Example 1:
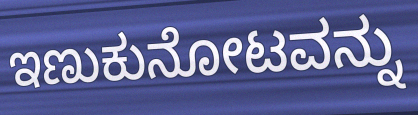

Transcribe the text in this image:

ಇಣುಕುನೋಟವನ್ನು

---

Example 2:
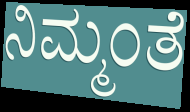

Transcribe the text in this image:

ನಿಮ್ಮಂತೆ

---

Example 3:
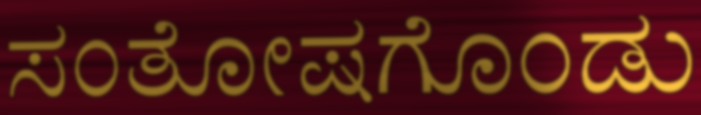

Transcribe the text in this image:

ಸಂತೋಷಗೊಂಡು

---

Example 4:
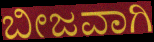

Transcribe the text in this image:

ಬೀಜವಾಗಿ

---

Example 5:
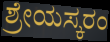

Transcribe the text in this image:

ಶ್ರೇಯಸ್ಕರಂ